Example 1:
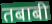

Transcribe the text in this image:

तबाबी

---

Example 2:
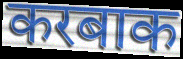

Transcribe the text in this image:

करबाक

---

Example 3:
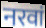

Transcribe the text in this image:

नरवां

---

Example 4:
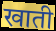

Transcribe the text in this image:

खाती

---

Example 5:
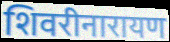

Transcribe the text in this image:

शिवरीनारायण